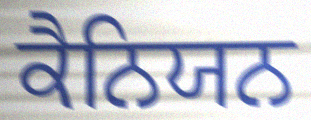
ਕੈਨਿਯਨ